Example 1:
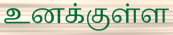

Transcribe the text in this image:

உனக்குள்ள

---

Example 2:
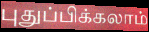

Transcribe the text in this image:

புதுப்பிக்கலாம்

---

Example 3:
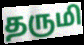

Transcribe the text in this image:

தருமி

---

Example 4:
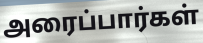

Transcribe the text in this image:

அரைப்பார்கள்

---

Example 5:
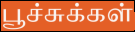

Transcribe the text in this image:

பூச்சுக்கள்